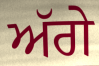
ਅੱਗੇ